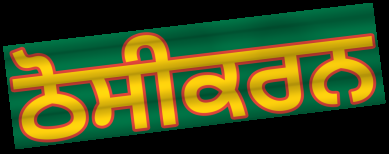
ਠੋਸੀਕਰਨ